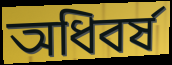
অধিবর্ষ